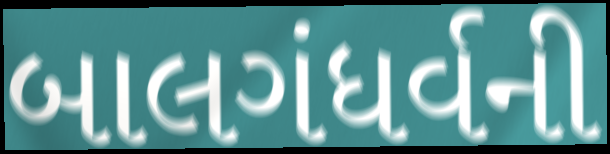
બાલગંધર્વની